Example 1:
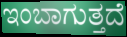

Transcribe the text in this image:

ಇಂಬಾಗುತ್ತದೆ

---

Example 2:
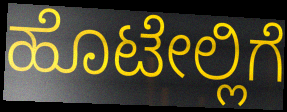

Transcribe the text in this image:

ಹೊಟೇಲ್ಲಿಗೆ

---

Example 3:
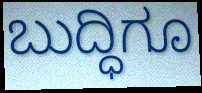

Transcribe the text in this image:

ಬುದ್ಧಿಗೂ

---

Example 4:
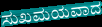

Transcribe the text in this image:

ಸುಖಮಯವಾದ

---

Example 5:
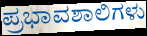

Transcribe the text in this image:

ಪ್ರಭಾವಶಾಲಿಗಳು